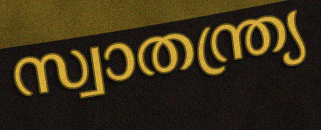
സ്വാതന്ത്ര്യ